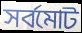
সর্বমোট